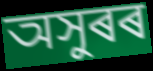
অসুৰৰ